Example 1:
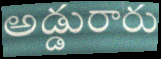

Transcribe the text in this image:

అడ్డురారు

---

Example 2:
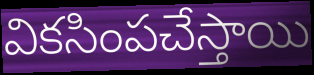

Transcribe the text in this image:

వికసింపచేస్తాయి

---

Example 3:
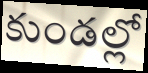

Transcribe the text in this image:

కుండల్లో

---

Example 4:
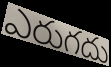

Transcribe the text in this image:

ఎరుగదు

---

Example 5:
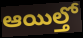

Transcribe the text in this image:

ఆయిల్తో